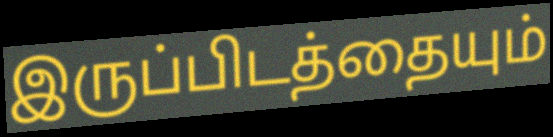
இருப்பிடத்தையும்